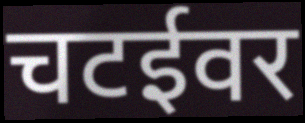
चटईवर